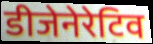
डीजेनेरेटिव